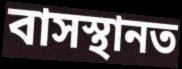
বাসস্থানত